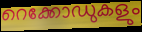
റെക്കോഡുകളും